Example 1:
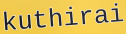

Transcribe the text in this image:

kuthirai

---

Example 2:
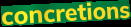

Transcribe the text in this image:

concretions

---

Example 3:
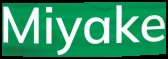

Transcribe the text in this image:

Miyake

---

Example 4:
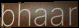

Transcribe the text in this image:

bhaar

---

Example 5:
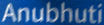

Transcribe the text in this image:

Anubhuti